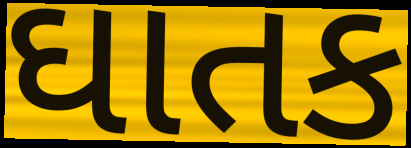
ઘાતક